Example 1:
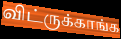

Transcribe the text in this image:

விட்ருக்காங்க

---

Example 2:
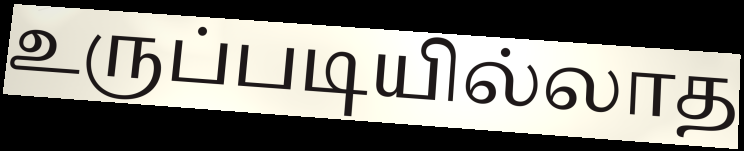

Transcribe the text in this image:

உருப்படியில்லாத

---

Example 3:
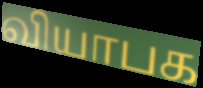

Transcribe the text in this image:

வியாபக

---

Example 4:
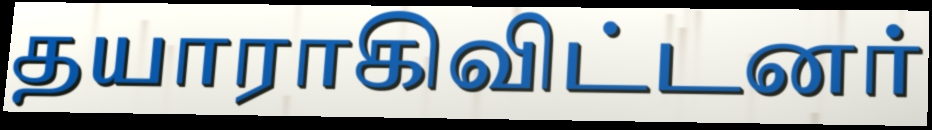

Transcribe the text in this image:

தயாராகிவிட்டனர்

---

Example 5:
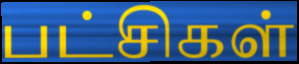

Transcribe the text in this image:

பட்சிகள்